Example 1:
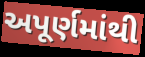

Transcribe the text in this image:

અપૂર્ણમાંથી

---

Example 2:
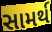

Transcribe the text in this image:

સામર્થ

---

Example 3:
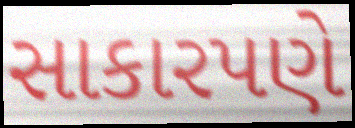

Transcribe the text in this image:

સાકારપણે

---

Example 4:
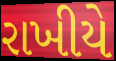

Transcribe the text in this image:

રાખીયે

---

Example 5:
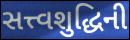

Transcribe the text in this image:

સત્ત્વશુદ્ધિની